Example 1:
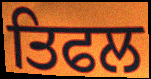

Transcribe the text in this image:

ਤਿਫਲ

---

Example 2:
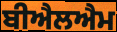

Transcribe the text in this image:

ਬੀਐਲਐਮ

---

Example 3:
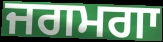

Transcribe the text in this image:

ਜਗਮਗਾ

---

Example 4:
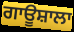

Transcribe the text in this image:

ਗਾਊਸ਼ਾਲਾ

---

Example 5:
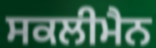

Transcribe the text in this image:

ਸਕਲੀਮੈਨ